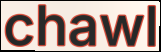
chawl